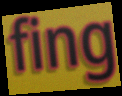
fing